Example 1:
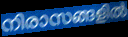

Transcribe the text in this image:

നിരാസങ്ങളിൽ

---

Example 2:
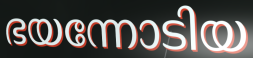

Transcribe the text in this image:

ഭയന്നോടിയ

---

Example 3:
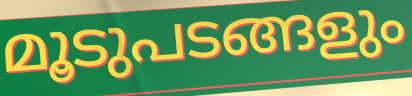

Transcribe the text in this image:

മൂടുപടങ്ങളും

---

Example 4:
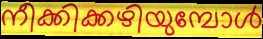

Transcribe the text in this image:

നീക്കിക്കഴിയുമ്പോൾ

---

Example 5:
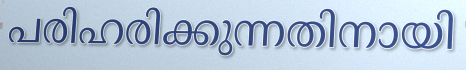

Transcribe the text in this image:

പരിഹരിക്കുന്നതിനായി